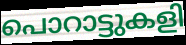
പൊറാട്ടുകളി